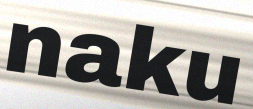
naku